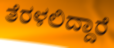
ತೆರಳಲಿದ್ದಾರೆ